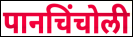
पानचिंचोली